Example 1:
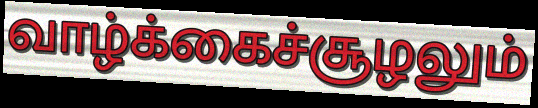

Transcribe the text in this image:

வாழ்க்கைச்சூழலும்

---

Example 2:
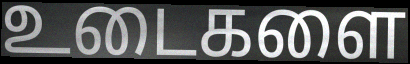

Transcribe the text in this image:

உடைகளை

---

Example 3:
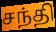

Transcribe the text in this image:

சந்தி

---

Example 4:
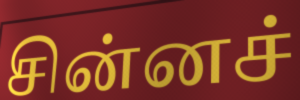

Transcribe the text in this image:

சின்னச்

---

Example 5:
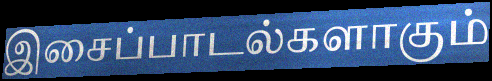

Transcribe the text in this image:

இசைப்பாடல்களாகும்